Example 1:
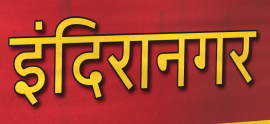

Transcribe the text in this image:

इंदिरानगर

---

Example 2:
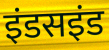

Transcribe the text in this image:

इंडसइंड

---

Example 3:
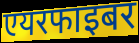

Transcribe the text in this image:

एयरफाइबर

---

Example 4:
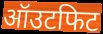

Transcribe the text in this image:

ऑउटफिट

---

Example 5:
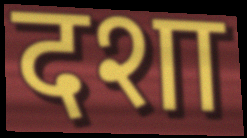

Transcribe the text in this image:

दशा